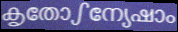
കൃതോഽന്യേഷാം